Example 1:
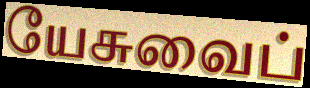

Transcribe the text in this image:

யேசுவைப்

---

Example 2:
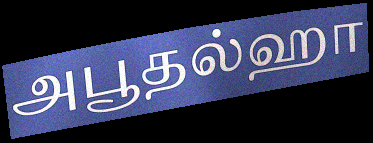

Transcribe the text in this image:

அபூதல்ஹா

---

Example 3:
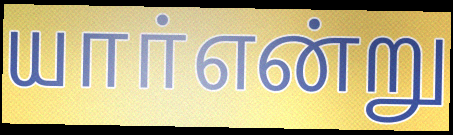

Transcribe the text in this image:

யார்என்று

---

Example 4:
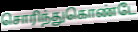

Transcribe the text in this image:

சொரிந்துகொண்டே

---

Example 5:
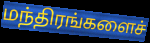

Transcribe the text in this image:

மந்திரங்களைச்